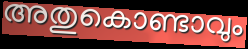
അതുകൊണ്ടാവും